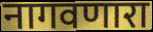
नागवणारा